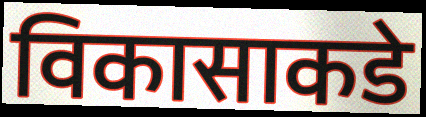
विकासाकडे